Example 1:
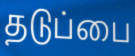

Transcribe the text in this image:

தடுப்பை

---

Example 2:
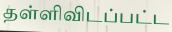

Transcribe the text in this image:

தள்ளிவிடப்பட்ட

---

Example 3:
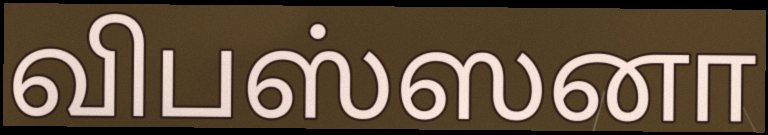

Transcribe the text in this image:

விபஸ்ஸனா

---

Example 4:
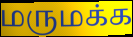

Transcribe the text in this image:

மருமக்க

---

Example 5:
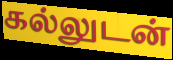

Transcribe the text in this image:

கல்லுடன்